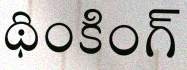
థింకింగ్